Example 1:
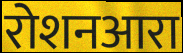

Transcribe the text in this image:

रोशनआरा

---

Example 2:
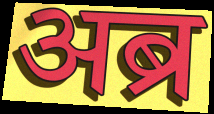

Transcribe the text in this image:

अब्र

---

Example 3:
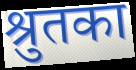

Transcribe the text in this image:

श्रुतका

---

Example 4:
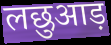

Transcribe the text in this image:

लछुआड़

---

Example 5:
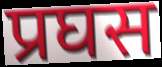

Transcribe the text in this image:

प्रघस